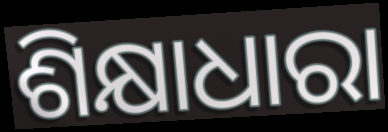
ଶିକ୍ଷାଧାରା